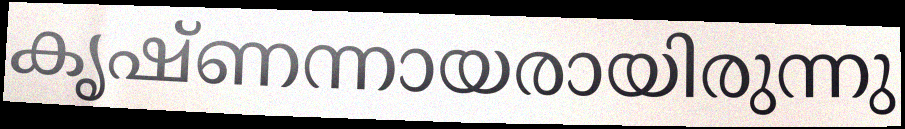
കൃഷ്ണന്നായരായിരുന്നു